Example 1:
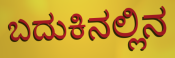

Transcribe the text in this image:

ಬದುಕಿನಲ್ಲಿನ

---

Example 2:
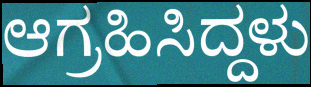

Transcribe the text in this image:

ಆಗ್ರಹಿಸಿದ್ದಳು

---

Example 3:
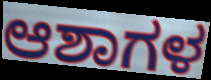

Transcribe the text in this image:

ಆಶಾಗಳ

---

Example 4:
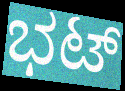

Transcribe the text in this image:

ಭಟ್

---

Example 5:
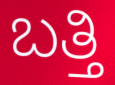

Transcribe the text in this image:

ಬತ್ತಿ